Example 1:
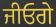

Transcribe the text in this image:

ਜੀਓਗੇ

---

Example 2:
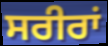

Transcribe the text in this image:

ਸਰੀਰਾਂ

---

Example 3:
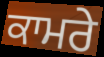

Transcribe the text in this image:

ਕਾਮਰੇ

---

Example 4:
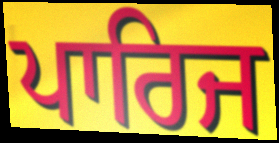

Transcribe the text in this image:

ਪਾਰਿਜ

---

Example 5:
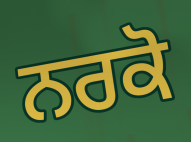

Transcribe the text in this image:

ਨਰਕੋ